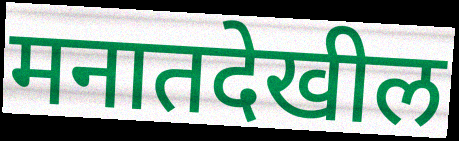
मनातदेखील